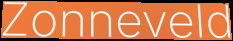
Zonneveld